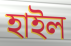
হাইল